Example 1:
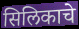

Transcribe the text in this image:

सिलिकाचे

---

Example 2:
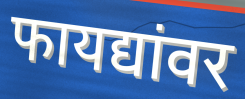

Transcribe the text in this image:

फायद्यांवर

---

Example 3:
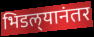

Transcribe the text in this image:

भिडल्यानंतर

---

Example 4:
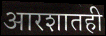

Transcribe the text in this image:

आरशातही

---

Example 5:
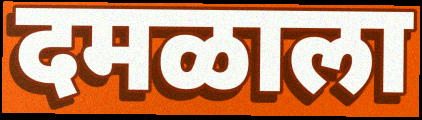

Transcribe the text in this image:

दमळाला